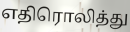
எதிரொலித்து